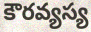
కౌరవ్యస్య